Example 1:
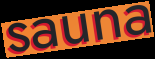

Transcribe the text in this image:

sauna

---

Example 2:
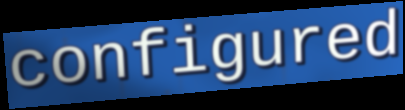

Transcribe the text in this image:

configured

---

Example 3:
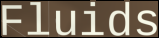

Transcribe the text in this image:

Fluids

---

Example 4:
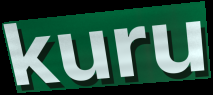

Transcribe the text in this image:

kuru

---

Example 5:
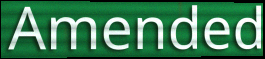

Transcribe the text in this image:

Amended